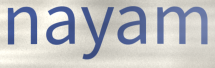
nayam